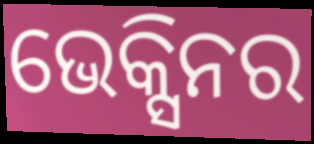
ଭେକ୍ସିନର